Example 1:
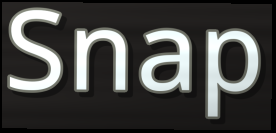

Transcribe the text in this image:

Snap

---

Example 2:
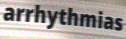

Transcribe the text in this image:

arrhythmias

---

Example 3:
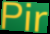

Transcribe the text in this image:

Pir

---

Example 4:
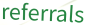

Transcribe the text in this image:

referrals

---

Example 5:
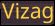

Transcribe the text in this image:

Vizag